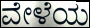
ವೇಳೆಯ